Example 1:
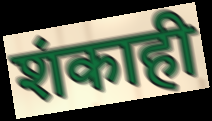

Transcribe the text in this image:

शंकाही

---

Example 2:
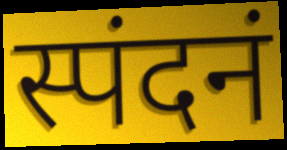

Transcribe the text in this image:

स्पंदनं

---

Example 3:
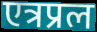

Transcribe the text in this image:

एत्रप्रल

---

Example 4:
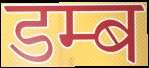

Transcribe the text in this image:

डम्ब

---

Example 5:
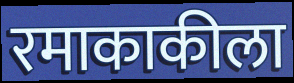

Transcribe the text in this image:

रमाकाकीला